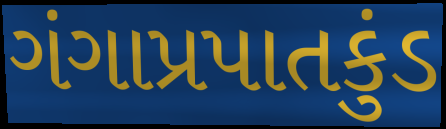
ગંગાપ્રપાતકુંડ